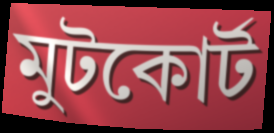
মুটকোর্ট